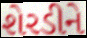
શેરડીને